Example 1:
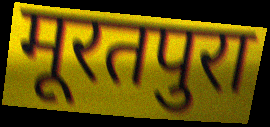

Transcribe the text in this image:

मूरतपुरा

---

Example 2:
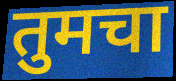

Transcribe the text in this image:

तुमचा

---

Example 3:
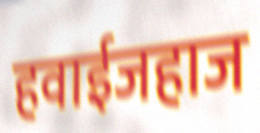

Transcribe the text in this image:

हवाईजहाज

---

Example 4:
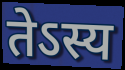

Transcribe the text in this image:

तेऽस्य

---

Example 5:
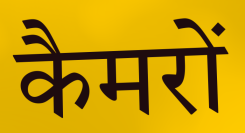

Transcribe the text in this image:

कैमरों